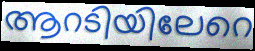
ആറടിയിലേറെ